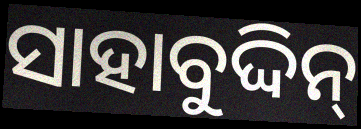
ସାହାବୁଦ୍ଦିନ୍